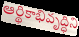
ఆర్థికాభివృద్ధిని